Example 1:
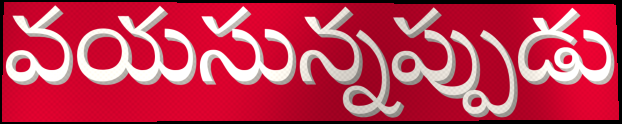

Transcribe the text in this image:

వయసున్నప్పుడు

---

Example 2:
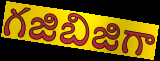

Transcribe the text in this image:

గజిబిజిగా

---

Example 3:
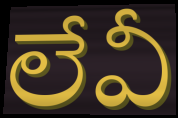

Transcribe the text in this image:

లేవీ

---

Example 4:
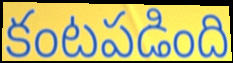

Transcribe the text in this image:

కంటపడింది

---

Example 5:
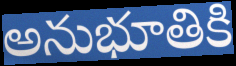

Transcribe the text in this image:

అనుభూతికి